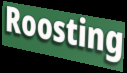
Roosting